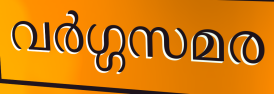
വർഗ്ഗസമര